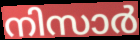
നിസാർ